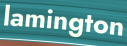
lamington